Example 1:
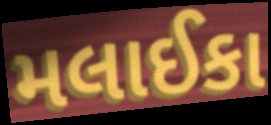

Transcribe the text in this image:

મલાઈકા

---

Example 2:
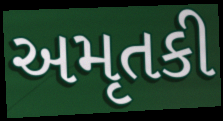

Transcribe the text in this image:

અમૃતકી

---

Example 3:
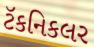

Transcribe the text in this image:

ટૅકનિકલર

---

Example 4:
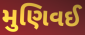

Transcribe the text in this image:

મુણિવઈ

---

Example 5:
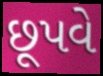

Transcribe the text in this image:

છૂપવે